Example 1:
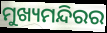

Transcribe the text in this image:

ମୁଖ୍ୟମନ୍ଦିରର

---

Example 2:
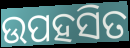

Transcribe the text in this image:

ଉପହସିତ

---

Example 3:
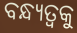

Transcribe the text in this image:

ବନ୍ଧ୍ୟତ୍ୱକୁ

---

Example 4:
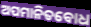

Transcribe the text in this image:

ଅପମାନିତବୋଧ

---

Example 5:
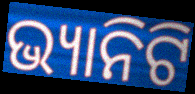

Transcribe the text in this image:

ଭ୍ୟାନିଟି